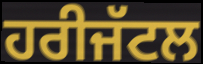
ਹਰੀਜੱਟਲ